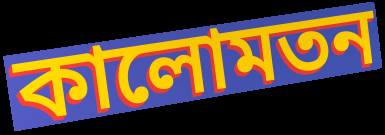
কালোমতন